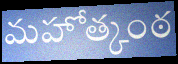
మహోత్కంఠ